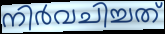
നിർവചിച്ചത്